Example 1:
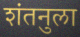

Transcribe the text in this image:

शंतनुला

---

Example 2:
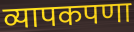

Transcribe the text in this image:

व्यापकपणा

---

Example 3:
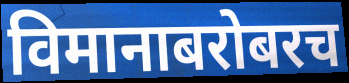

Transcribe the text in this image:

विमानाबरोबरच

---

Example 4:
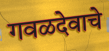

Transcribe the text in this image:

गवळदेवाचे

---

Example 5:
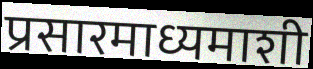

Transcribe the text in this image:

प्रसारमाध्यमाशी